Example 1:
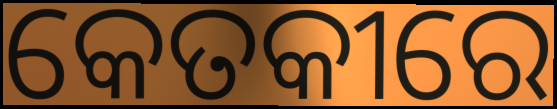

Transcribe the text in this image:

କେତକୀରେ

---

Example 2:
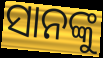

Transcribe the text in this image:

ସାନଙ୍କୁ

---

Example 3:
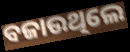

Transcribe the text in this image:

ବଜାଉଥିଲେ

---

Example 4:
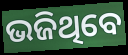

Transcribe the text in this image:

ଭଜିଥିବେ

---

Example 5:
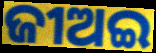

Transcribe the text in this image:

ଜୀଅଇ